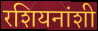
रशियनांशी